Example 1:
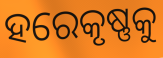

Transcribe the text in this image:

ହରେକୃଷ୍ଣକୁ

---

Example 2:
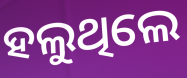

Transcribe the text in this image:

ହଲୁଥିଲେ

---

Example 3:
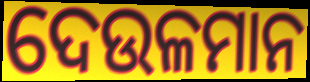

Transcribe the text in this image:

ଦେଉଳମାନ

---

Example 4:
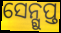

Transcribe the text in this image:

ସେନ୍ଗୁପ୍ତ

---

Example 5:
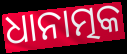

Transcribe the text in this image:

ଧାନାତ୍ମକ